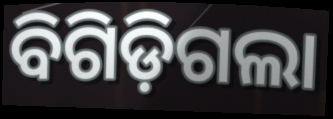
ବିଗିଡ଼ିଗଲା